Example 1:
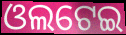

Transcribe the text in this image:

ଓଲଟେଇ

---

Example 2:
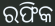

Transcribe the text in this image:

ରଫିକ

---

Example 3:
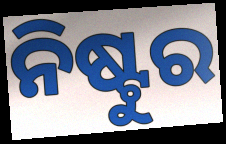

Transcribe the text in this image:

ନିଷ୍ଟୁର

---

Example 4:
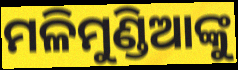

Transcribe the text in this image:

ମଳିମୁଣ୍ଡିଆଙ୍କୁ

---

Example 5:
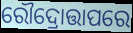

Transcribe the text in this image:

ରୌଦ୍ରୋତ୍ତାପରେ